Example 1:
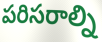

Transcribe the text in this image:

పరిసరాల్ని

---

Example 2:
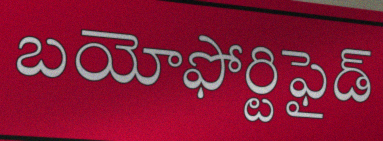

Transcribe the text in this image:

బయోఫోర్టిఫైడ్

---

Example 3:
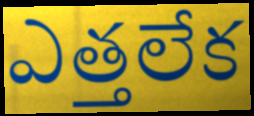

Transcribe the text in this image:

ఎత్తలేక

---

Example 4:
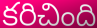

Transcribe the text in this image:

కరిచింది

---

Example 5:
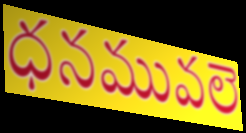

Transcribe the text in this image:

ధనమువలె